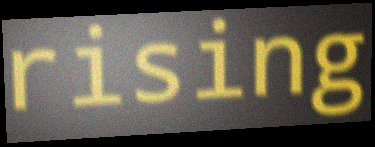
rising